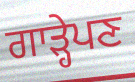
ਗਾੜ੍ਹੇਪਣ